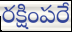
రక్షింపరే